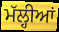
ਮੱਲ੍ਹੀਆਂ